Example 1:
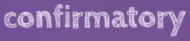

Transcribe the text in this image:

confirmatory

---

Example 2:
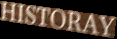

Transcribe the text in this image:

HISTORAY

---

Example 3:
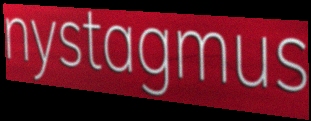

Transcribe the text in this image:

nystagmus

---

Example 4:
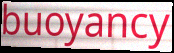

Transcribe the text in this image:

buoyancy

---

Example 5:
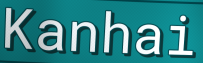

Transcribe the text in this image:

Kanhai